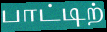
பாட்டிற்